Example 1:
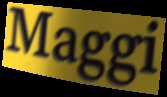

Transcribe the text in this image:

Maggi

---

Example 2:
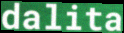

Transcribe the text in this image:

dalita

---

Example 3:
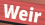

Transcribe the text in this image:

Weir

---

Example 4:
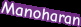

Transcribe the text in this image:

Manoharan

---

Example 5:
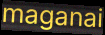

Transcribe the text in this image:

maganai